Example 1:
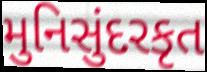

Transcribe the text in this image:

મુનિસુંદરકૃત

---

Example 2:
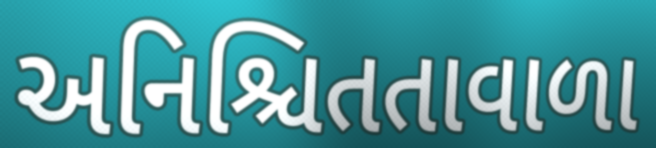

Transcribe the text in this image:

અનિશ્ચિતતાવાળા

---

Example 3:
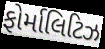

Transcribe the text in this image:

ફોર્માલિટિઝ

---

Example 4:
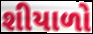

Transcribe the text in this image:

શીયાળો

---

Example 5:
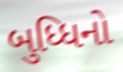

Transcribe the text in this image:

બુધ્ધિનો